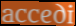
accedi